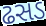
ઢસડ